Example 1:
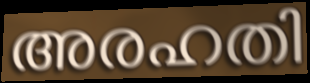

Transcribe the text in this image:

അരഹതി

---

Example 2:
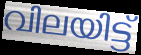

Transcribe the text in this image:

വിലയിട്ട്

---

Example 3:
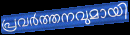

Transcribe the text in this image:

പ്രവർത്തനവുമായി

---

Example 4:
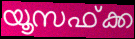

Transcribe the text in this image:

യൂസഫ്ക്ക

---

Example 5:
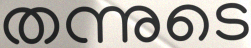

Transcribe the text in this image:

തന്നുടെ